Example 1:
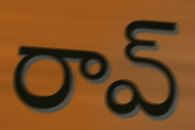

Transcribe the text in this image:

రావ్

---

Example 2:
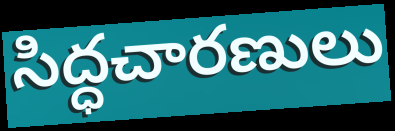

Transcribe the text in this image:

సిద్ధచారణులు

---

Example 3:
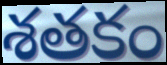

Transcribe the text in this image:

శతకం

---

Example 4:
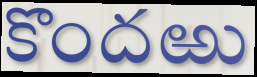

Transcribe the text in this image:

కొందఱు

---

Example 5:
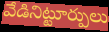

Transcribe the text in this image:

వేడినిట్టూర్పులు